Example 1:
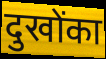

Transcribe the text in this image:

दुखोंका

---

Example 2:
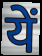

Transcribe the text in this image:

यें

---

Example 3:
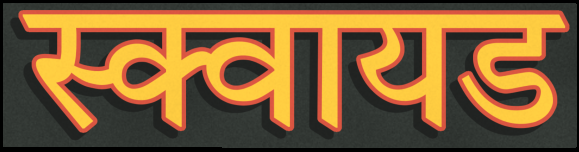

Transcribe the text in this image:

स्क्वायड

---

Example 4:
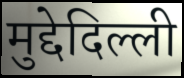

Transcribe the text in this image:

मुद्देदिल्ली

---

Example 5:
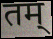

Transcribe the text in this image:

तम्